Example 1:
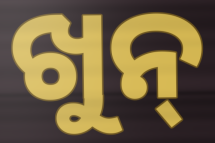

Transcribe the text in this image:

ଖୁନ୍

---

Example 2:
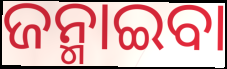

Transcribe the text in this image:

ଜନ୍ମାଇବା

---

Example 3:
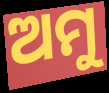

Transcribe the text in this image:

ଅମୁ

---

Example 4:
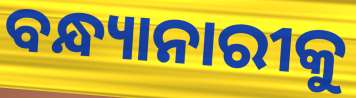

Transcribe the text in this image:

ବନ୍ଧ୍ୟାନାରୀକୁ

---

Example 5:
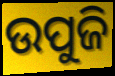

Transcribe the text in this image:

ଉପୁଜି